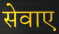
सेवाए